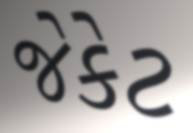
જેકેટ